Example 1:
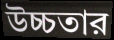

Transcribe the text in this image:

উচ্চতার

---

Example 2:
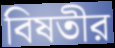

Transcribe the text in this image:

বিষতীর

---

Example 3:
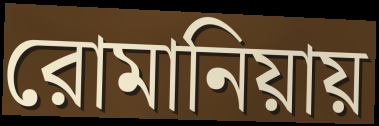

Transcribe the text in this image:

রোমানিয়ায়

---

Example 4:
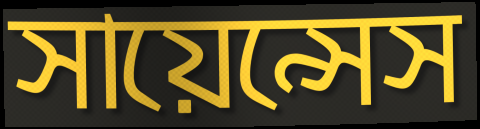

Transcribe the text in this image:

সায়েন্সেস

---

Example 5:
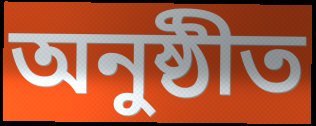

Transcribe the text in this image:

অনুষ্ঠীত